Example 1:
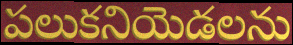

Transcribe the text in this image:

పలుకనియెడలను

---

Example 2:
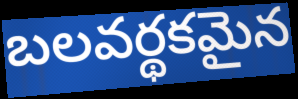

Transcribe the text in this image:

బలవర్థకమైన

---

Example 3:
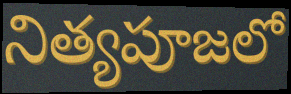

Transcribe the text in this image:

నిత్యపూజలో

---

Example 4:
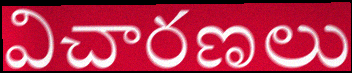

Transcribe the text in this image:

విచారణలు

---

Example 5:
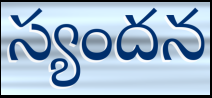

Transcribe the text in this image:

స్యందన